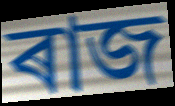
ৰাজ